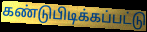
கண்டுபிடிக்கப்பட்டு